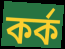
কর্ক